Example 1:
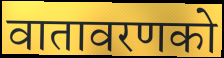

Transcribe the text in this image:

वातावरणको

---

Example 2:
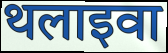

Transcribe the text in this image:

थलाइवा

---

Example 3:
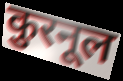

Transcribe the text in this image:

कुरनूल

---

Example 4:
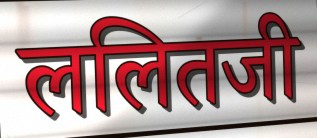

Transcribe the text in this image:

ललितजी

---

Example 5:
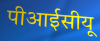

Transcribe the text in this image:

पीआईसीयू